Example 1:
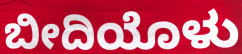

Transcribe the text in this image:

ಬೀದಿಯೊಳು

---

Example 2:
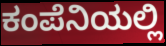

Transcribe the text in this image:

ಕಂಪೆನಿಯಲ್ಲಿ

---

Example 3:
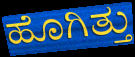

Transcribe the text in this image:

ಹೊಗಿತ್ತು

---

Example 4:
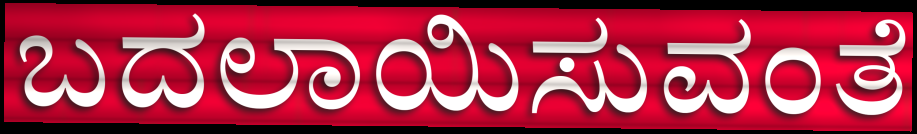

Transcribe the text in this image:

ಬದಲಾಯಿಸುವಂತೆ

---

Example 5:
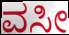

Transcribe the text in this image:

ವಸೀ